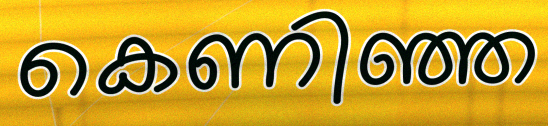
കെണിഞ്ഞ